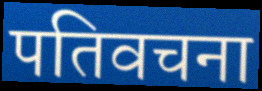
पतिवचना